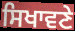
ਸਿਖਾਵਣੇ